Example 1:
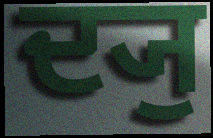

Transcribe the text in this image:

ਦ੍ਯੁ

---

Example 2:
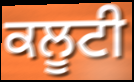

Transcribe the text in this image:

ਕਲੂਟੀ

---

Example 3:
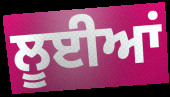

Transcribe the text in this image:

ਲੂਈਆਂ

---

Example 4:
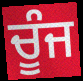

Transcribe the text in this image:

ਚੂੰਜ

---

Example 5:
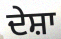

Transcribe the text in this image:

ਦੇਸ਼ਾ